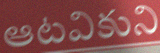
ఆటవికుని